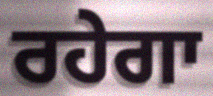
ਰਹੇਗਾ